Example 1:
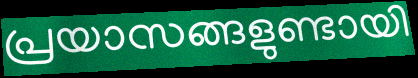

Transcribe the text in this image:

പ്രയാസങ്ങളുണ്ടായി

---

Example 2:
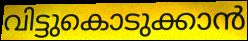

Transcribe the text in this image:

വിട്ടുകൊടുക്കാൻ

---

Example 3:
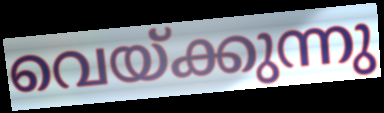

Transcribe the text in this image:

വെയ്ക്കുന്നു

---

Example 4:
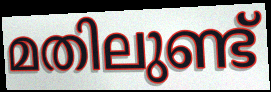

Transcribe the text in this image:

മതിലുണ്ട്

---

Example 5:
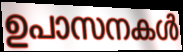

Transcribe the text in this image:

ഉപാസനകൾ